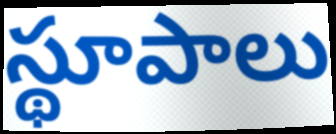
స్థూపాలు